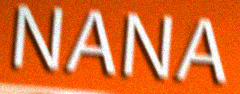
NANA